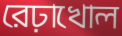
রেঢ়াখোল